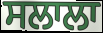
ਸਲਾਲਾ